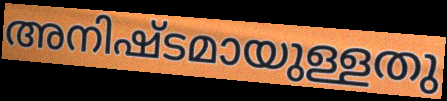
അനിഷ്ടമായുള്ളതു